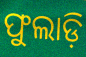
ଫୁଲାଡ଼ି